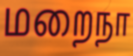
மறைநா